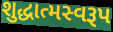
શુદ્ધાત્મસ્વરૂપ